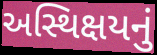
અસ્થિક્ષયનું